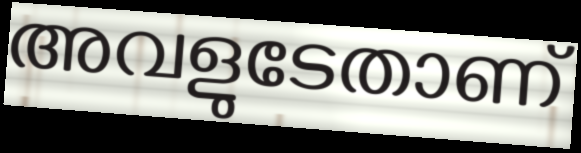
അവളുടേതാണ്